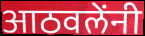
आठवलेंनी